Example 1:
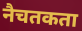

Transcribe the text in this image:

नैचतकता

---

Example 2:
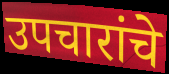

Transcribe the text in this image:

उपचारांचे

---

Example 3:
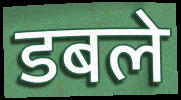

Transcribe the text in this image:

डबले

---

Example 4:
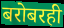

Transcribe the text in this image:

बरोबरही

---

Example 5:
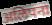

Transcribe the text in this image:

अलिपना